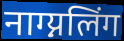
नाग्न्यलिंग